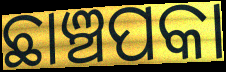
ଛାଞ୍ଚପକା